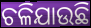
ଚଳିଯାଉଛି